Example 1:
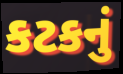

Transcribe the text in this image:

કટકનું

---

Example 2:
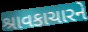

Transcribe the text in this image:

શ્રાવકાચારને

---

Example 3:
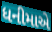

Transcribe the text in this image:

ધનીમાએ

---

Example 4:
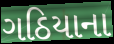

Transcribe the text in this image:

ગઠિયાના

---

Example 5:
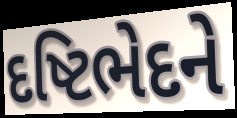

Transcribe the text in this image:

દષ્ટિભેદને